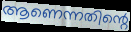
ആണെന്നതിന്റെ